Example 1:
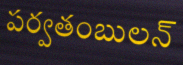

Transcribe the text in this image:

పర్వతంబులన్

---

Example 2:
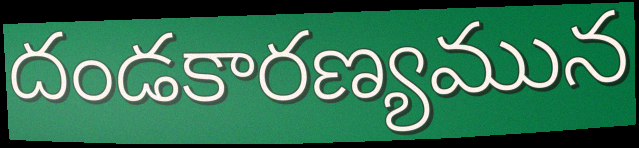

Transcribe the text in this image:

దండకారణ్యమున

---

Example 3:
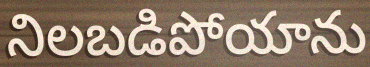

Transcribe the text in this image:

నిలబడిపోయాను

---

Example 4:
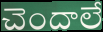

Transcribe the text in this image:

చెందాలే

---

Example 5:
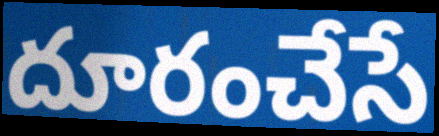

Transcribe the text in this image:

దూరంచేసే